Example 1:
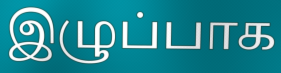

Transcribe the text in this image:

இழுப்பாக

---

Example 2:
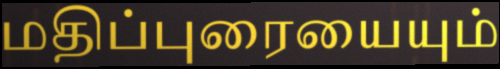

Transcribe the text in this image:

மதிப்புரையையும்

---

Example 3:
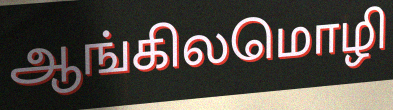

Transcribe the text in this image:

ஆங்கிலமொழி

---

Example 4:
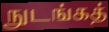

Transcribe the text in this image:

நுடங்கத்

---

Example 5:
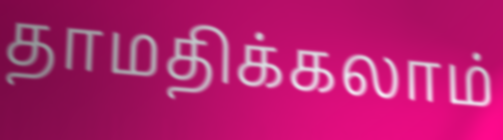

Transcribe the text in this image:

தாமதிக்கலாம்